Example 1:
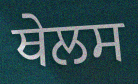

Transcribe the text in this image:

ਥੇਲਸ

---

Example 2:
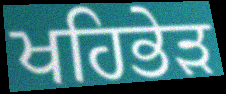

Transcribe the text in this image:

ਖਹਿਭੇੜ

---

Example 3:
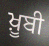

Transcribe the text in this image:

ਖ਼ੂਬੀ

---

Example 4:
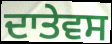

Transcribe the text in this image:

ਦਾਤੇਵਸ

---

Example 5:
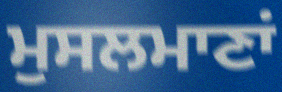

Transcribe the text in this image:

ਮੁਸਲਮਾਣਾਂ